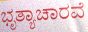
ಭೃತ್ಯಾಚಾರವೆ